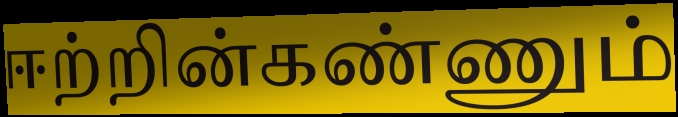
ஈற்றின்கண்ணும்